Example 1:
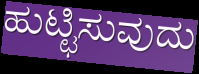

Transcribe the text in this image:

ಹುಟ್ಟಿಸುವುದು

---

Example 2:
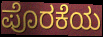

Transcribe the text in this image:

ಪೊರಕೆಯ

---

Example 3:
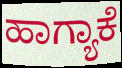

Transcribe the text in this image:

ಹಾಗ್ಯಾಕೆ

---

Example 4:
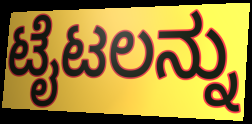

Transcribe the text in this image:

ಟೈಟಲನ್ನು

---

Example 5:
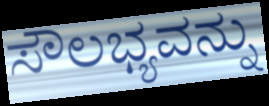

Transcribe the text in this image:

ಸೌಲಭ್ಯವನ್ನು